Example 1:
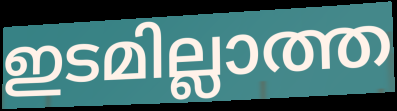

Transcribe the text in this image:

ഇടമില്ലാത്ത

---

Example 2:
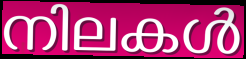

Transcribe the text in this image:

നിലകൾ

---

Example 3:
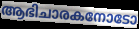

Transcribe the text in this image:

ആഭിചാരകനോടോ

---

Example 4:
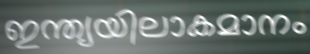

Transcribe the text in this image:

ഇന്ത്യയിലാകമാനം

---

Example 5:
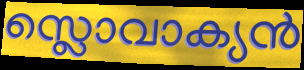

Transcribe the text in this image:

സ്ലൊവാക്യൻ